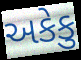
અકેકુ